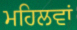
ਮਹਿਲਵਾਂ